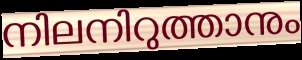
നിലനിറുത്താനും